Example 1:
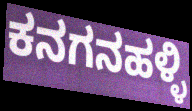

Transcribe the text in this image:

ಕನಗನಹಳ್ಳಿ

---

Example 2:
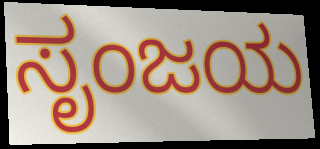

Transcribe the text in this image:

ಸೃಂಜಯ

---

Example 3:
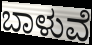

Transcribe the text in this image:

ಬಾಳುವೆ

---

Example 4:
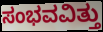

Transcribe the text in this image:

ಸಂಭವವಿತ್ತು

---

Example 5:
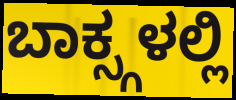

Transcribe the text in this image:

ಬಾಕ್ಸ್ಗಳಲ್ಲಿ